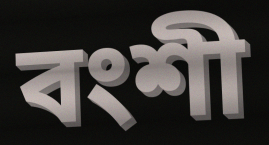
বংশী